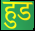
हुड